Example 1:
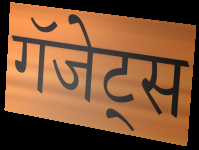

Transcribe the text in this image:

गॅजेट्स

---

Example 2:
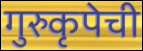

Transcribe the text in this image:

गुरुकृपेची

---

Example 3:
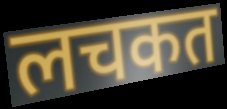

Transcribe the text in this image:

लचकत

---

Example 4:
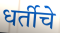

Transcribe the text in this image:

धर्तीचे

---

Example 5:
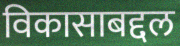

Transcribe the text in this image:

विकासाबद्दल